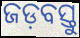
ଜଡ଼ବସ୍ତୁ